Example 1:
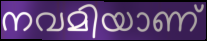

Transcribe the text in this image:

നവമിയാണ്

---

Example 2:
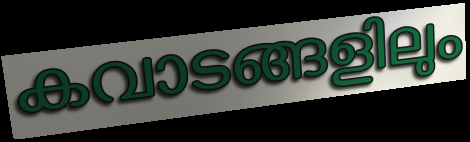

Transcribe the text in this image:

കവാടങ്ങളിലും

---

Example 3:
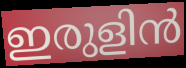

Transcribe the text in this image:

ഇരുളിൻ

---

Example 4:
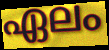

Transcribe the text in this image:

ഏലം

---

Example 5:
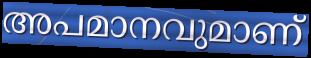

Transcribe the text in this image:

അപമാനവുമാണ്